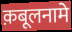
क़बूलनामे